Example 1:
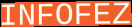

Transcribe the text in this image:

INFOFEZ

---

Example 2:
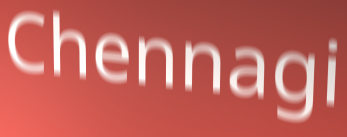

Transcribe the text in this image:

Chennagi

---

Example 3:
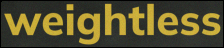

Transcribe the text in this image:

weightless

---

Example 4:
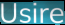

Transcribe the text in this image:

Usire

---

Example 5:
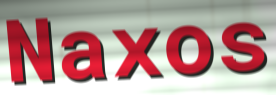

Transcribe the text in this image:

Naxos